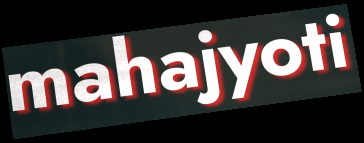
mahajyoti